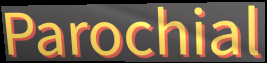
Parochial